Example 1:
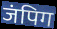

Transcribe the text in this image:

जंपिग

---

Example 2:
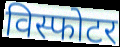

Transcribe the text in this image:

विस्फोटर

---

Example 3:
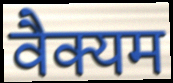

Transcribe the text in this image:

वैक्यम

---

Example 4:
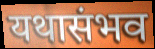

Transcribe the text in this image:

यथासंभव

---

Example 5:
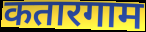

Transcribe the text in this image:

कतारगाम